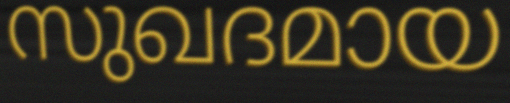
സുഖദമായ